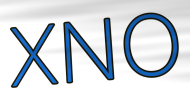
XNO